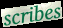
scribes